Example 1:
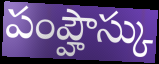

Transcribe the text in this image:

పంప్హౌస్కు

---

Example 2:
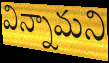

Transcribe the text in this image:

విన్నామని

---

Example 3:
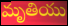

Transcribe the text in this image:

మృతియు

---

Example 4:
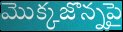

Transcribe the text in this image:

మొక్కజొన్నపై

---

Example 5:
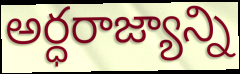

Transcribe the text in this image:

అర్ధరాజ్యాన్ని